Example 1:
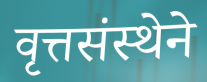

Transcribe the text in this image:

वृत्तसंस्थेने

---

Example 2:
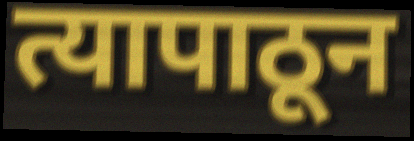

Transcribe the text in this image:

त्यापाठून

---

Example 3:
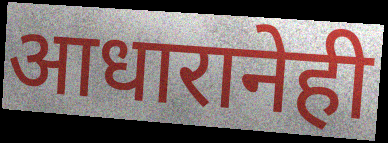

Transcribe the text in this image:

आधारानेही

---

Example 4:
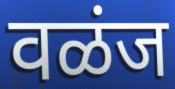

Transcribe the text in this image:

वळंज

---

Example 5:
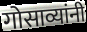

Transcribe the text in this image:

गोसाव्यांनी